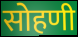
सोहणी